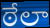
ఠేలా